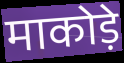
माकोड़े